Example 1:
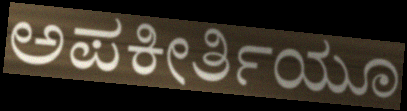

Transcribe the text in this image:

ಅಪಕೀರ್ತಿಯೂ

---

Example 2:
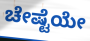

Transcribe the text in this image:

ಚೇಷ್ಟೆಯೇ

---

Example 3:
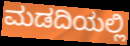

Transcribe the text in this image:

ಮಡದಿಯಲ್ಲಿ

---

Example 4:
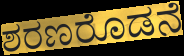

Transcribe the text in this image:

ಶರಣರೊಡನೆ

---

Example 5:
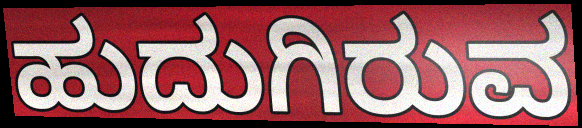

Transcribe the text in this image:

ಹುದುಗಿರುವ